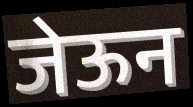
जेऊन